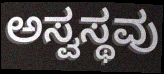
ಅಸ್ವಸ್ಥವು